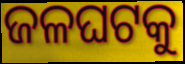
ଜଳଘଟକୁ